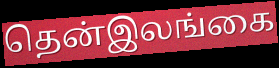
தென்இலங்கை